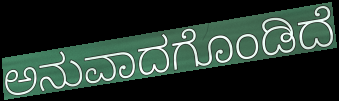
ಅನುವಾದಗೊಂಡಿದೆ